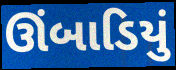
ઊંબાડિયું